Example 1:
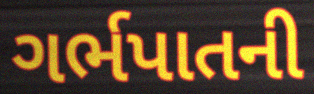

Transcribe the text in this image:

ગર્ભપાતની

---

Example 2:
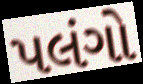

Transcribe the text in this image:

પલંગો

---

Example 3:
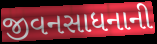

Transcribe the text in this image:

જીવનસાધનાની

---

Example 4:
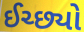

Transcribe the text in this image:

ઈચ્છ્યો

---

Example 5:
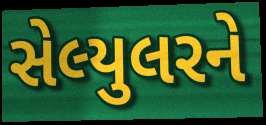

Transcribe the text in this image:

સેલ્યુલરને